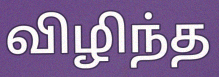
விழிந்த